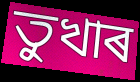
তুখাৰ